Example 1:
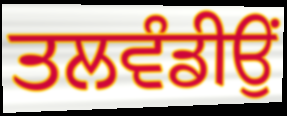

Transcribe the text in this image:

ਤਲਵੰਡੀਉਂ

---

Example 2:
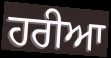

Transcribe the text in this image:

ਹਰੀਆ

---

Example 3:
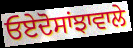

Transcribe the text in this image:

ਓਏਦੋਸਾਂਝਾਵਾਲੇ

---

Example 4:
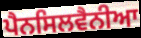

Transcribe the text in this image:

ਪੈਨਸਿਲਵੈਨੀਆ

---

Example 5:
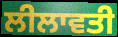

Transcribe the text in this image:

ਲੀਲਾਵਤੀ